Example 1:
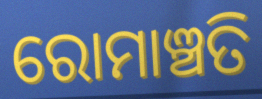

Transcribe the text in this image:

ରୋମାଞ୍ଚତି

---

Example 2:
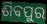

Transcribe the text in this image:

ଶିବପୁର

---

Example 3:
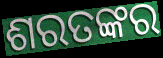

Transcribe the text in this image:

ଶରତଙ୍କର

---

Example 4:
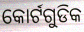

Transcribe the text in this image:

କୋର୍ଟଗୁଡିକ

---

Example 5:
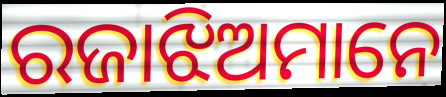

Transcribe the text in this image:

ରଜାଝିଅମାନେ